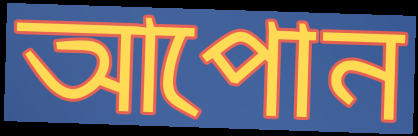
আপোন